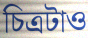
চিত্রটাও